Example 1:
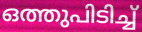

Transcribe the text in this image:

ഒത്തുപിടിച്ച്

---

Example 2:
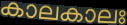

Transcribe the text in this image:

കാലകാലഃ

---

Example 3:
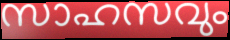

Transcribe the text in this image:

സാഹസവും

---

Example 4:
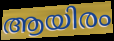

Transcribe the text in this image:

ആയിരം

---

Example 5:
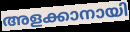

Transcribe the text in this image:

അളക്കാനായി